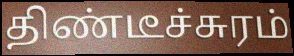
திண்டீச்சுரம்